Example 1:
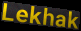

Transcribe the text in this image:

Lekhak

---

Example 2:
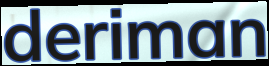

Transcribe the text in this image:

deriman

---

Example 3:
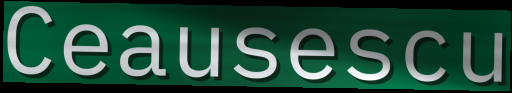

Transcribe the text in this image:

Ceausescu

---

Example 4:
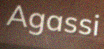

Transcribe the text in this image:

Agassi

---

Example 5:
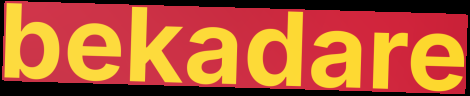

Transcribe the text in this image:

bekadare